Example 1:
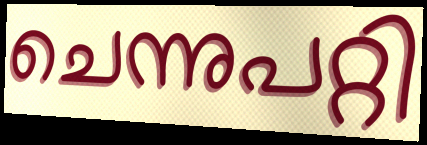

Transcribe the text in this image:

ചെന്നുപറ്റി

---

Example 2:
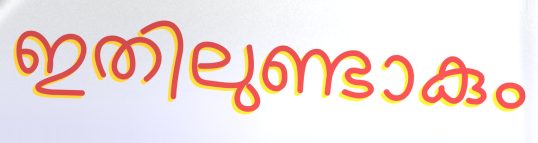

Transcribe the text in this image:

ഇതിലുണ്ടാകും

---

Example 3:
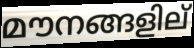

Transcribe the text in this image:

മൗനങ്ങളില്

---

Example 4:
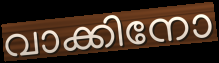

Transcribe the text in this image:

വാക്കിനോ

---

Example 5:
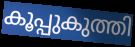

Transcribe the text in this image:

കൂപ്പുകുത്തി